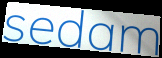
sedam